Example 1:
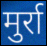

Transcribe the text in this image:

मुर्रा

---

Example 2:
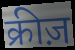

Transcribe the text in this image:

क्रीज़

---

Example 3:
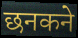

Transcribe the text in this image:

छनकने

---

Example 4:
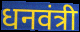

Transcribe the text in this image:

धनवंत्री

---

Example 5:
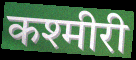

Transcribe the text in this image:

कश्‍मीरी